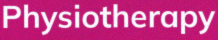
Physiotherapy